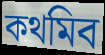
কথমিব